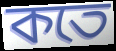
কতে